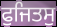
ਫੁਜਿਤਸੁ